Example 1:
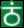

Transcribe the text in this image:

ठं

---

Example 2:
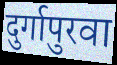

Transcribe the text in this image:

दुर्गापुरवा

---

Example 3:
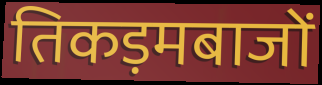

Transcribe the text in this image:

तिकड़मबाजों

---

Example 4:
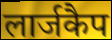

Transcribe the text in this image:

लार्जकैप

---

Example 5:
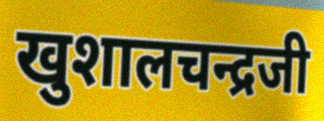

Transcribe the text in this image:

खुशालचन्द्रजी